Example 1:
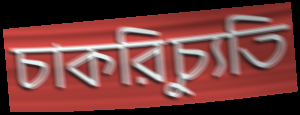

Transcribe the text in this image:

চাকরিচ্যুতি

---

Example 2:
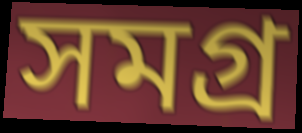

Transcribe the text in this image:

সমগ্র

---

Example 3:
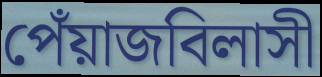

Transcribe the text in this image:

পেঁয়াজবিলাসী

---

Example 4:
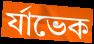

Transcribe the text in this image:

র্যাভেক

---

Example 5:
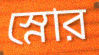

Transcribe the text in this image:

স্নোর